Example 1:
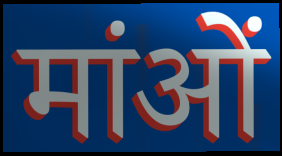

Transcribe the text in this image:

मांओं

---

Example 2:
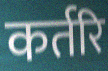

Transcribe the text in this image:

कर्तरि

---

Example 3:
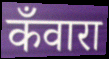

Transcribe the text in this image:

कँवारा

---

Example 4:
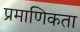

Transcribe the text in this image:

प्रमाणिकता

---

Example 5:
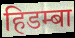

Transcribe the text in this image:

हिडम्बा